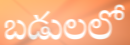
బడులలో